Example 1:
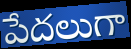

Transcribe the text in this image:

పేదలుగా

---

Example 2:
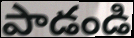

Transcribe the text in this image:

పాడండి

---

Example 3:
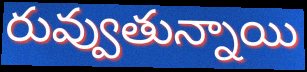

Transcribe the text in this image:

రువ్వుతున్నాయి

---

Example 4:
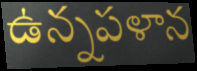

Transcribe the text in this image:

ఉన్నపళాన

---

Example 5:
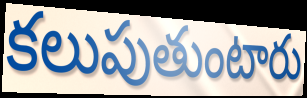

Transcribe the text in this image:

కలుపుతుంటారు